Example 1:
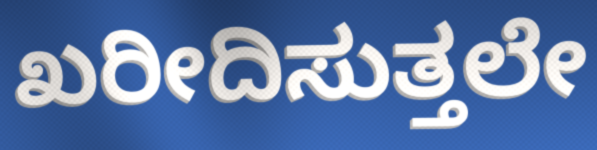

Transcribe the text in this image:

ಖರೀದಿಸುತ್ತಲೇ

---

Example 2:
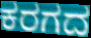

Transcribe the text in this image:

ಕರಗದ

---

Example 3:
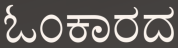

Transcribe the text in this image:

ಓಂಕಾರದ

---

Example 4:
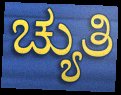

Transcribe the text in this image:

ಚ್ಯುತಿ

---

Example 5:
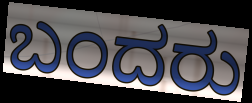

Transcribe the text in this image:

ಬಂದರು